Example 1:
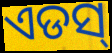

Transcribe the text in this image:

ଏଡସ୍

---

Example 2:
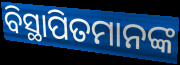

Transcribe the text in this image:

ବିସ୍ଥାପିତମାନଙ୍କ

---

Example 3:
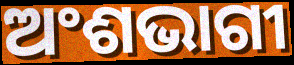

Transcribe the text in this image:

ଅଂଶଭାଗୀ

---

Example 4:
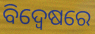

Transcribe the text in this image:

ବିଦ୍ଵେଷରେ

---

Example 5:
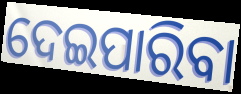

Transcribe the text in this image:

ଦେଇପାରିବା